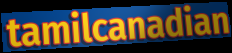
tamilcanadian